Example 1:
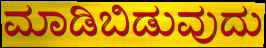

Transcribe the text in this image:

ಮಾಡಿಬಿಡುವುದು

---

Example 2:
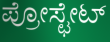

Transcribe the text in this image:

ಪ್ರೋಸ್ಟೇಟ್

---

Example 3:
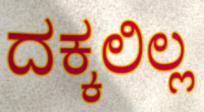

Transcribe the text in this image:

ದಕ್ಕಲಿಲ್ಲ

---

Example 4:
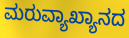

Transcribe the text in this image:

ಮರುವ್ಯಾಖ್ಯಾನದ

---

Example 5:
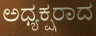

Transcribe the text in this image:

ಅಧ್ಯಕ್ಷರಾದ